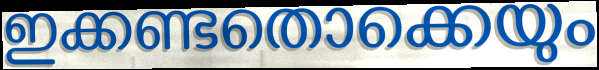
ഇക്കണ്ടതൊക്കെയും